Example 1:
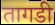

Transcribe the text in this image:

तागडी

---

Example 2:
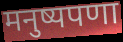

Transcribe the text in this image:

मनुष्यपणा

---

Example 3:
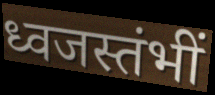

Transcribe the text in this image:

ध्वजस्तंभीं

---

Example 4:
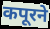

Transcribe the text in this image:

कपूरने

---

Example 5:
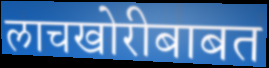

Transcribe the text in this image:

लाचखोरीबाबत